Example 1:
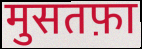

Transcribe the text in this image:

मुसतफ़ा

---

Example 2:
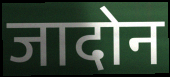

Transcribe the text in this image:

जादोन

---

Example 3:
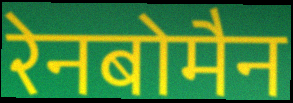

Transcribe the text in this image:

रेनबोमैन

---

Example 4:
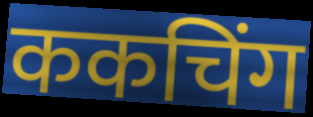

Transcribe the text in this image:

ककचिंग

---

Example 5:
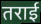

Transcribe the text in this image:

तराई